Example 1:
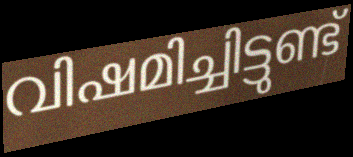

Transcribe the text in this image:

വിഷമിച്ചിട്ടുണ്ട്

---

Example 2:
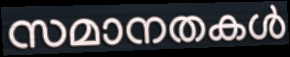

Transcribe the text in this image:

സമാനതകൾ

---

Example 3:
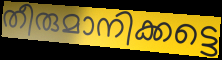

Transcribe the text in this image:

തീരുമാനിക്കട്ടെ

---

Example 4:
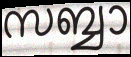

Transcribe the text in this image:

സബ്ബാ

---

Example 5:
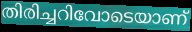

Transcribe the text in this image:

തിരിച്ചറിവോടെയാണ്